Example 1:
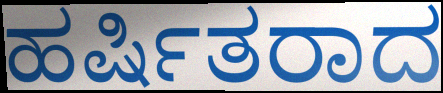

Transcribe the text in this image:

ಹರ್ಷಿತರಾದ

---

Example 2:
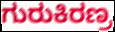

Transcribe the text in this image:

ಗುರುಕಿರಣ್ರ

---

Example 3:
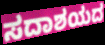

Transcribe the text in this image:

ಸದಾಶಯದ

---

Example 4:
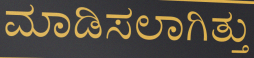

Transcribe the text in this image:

ಮಾಡಿಸಲಾಗಿತ್ತು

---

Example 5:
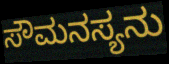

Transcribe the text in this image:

ಸೌಮನಸ್ಯನು